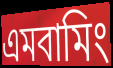
এমবামিং